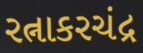
રત્નાકરચંદ્ર